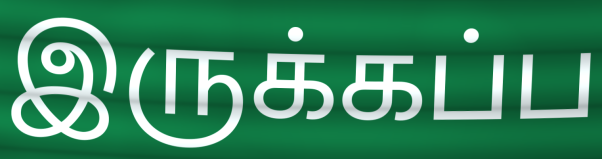
இருக்கப்ப